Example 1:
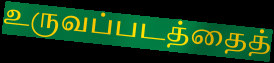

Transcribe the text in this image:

உருவப்படத்தைத்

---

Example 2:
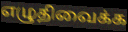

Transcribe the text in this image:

எழுதிவைக்க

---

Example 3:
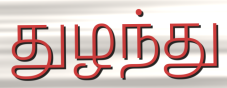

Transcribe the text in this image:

துழந்து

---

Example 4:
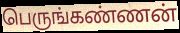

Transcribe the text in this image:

பெருங்கண்ணன்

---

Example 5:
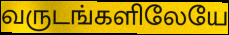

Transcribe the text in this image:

வருடங்களிலேயே